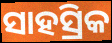
ସାହସ୍ରିକ